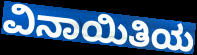
ವಿನಾಯಿತಿಯ